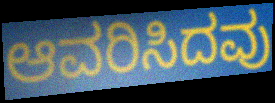
ಆವರಿಸಿದವು